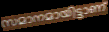
സമാനമായിട്ടാണ്